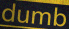
dumb